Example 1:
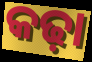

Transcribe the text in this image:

କଢ଼ା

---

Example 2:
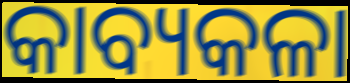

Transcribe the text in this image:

କାବ୍ୟକଳା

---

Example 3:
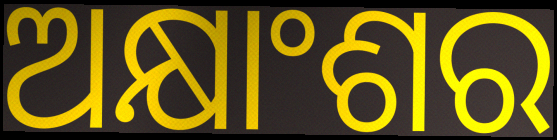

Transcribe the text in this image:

ଅକ୍ଷାଂଶର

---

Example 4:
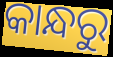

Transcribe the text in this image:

କାନ୍ଧରୁ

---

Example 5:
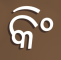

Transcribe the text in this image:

କିଂ